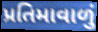
પ્રતિમાવાળું